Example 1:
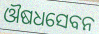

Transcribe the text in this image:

ଔଷଧସେବନ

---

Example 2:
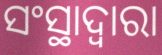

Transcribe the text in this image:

ସଂସ୍ଥାଦ୍ୱାରା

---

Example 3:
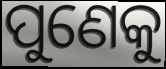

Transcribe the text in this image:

ପୁଣେକୁ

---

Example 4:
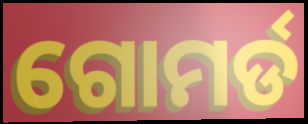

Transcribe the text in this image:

ଗୋମର୍ଡ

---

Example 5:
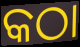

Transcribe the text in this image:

କଠା